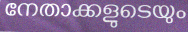
നേതാക്കളുടെയും